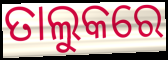
ତାଲୁକରେ